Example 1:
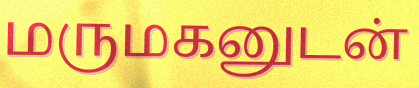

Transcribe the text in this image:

மருமகனுடன்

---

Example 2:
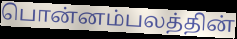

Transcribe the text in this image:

பொன்னம்பலத்தின்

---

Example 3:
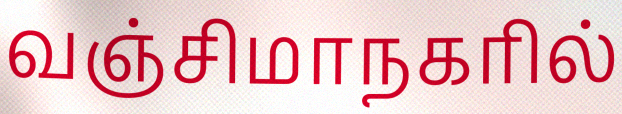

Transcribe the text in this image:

வஞ்சிமாநகரில்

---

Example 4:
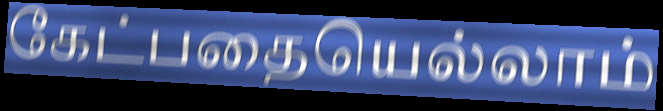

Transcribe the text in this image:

கேட்பதையெல்லாம்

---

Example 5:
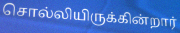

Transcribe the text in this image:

சொல்லியிருக்கின்றார்